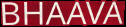
BHAAVA